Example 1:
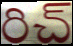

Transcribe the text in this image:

రిచ్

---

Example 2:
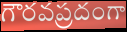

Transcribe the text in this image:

గౌరవప్రదంగా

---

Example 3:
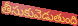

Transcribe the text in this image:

తీసుకువెడుతుంది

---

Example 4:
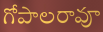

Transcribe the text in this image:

గోపాలరావూ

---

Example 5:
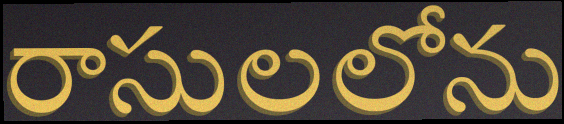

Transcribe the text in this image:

రాసులలోను